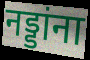
नड्डांना